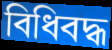
বিধিবদ্ধ